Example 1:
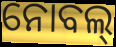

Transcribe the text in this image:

ନୋବଲ୍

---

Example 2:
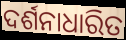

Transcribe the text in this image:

ଦର୍ଶନାଧାରିତ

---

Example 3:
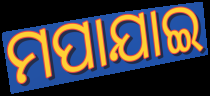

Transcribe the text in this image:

ମପାଯାଇ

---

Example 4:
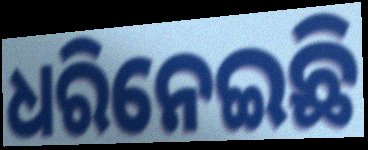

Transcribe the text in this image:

ଧରିନେଇଛି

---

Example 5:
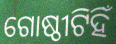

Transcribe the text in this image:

ଗୋଷ୍ଠୀଟିହିଁ